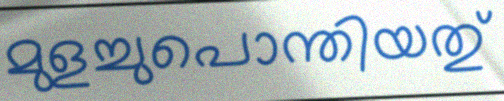
മുളച്ചുപൊന്തിയതു്